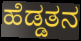
ಹೆಡ್ಡತನ